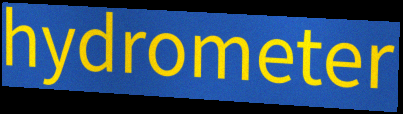
hydrometer